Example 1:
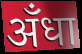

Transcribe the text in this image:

अँधा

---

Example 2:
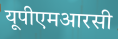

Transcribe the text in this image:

यूपीएमआरसी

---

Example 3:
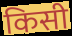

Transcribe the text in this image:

किसी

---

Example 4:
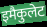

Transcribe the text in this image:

इमैकुलेट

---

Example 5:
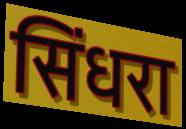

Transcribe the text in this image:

सिंधरा